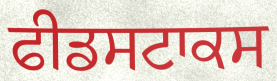
ਫੀਡਸਟਾਕਸ